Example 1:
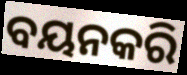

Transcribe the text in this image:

ବୟନକରି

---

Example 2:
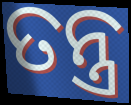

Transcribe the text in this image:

ତନ୍ତ୍ର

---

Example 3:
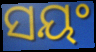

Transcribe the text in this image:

ସୟଂ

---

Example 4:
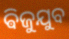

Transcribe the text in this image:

ଵିଜୁଯୁବ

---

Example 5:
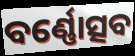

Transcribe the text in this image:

ବର୍ଣ୍ଣୋତ୍ସବ